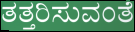
ತತ್ತರಿಸುವಂತೆ